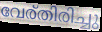
വേര്തിരിച്ചു